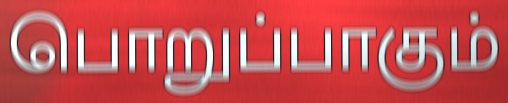
பொறுப்பாகும்